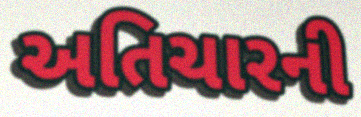
અતિચારની